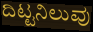
ದಿಟ್ಟನಿಲುವು